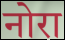
नोरा